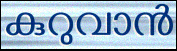
കുറുവാൻ